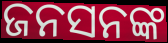
ଜନସନଙ୍କ